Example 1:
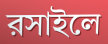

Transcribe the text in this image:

রসাইলে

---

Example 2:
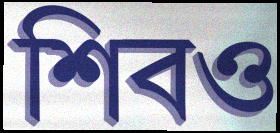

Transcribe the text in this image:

শিবও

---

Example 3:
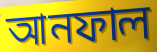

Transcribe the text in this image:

আনফাল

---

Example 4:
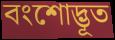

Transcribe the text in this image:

বংশোদ্ভূত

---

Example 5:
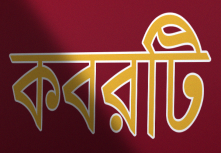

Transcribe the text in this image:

কবরটি